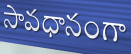
సావధానంగా